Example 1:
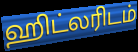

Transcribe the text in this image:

ஹிட்லரிடம்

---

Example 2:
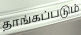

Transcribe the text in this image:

தாங்கப்படும்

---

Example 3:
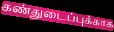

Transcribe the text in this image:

கண்துடைப்புக்காக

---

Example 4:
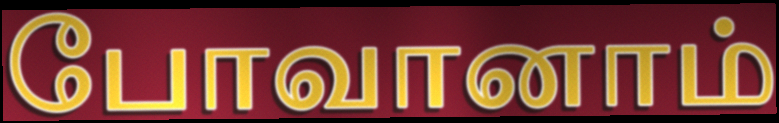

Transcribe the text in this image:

போவானாம்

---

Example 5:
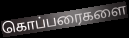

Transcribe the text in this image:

கொப்பரைகளை